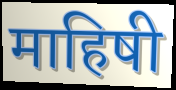
माहिषी